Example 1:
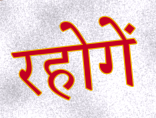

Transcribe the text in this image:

रहोगें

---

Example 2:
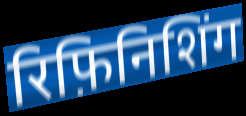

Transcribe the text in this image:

रिफ़िनिशिंग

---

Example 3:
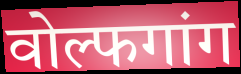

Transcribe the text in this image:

वोल्फगांग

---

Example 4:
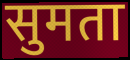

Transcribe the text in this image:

सुमता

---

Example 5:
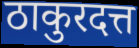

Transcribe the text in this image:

ठाकुरदत्त